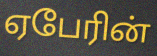
ஏபேரின்